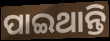
ପାଇଥାନ୍ତି